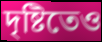
দৃষ্টিতেও